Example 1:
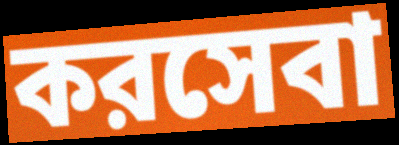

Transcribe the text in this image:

করসেবা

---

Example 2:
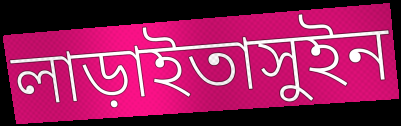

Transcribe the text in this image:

লাড়াইতাসুইন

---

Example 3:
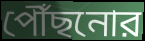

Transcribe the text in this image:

পৌঁছনোর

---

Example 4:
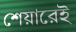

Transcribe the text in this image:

শেয়ারেই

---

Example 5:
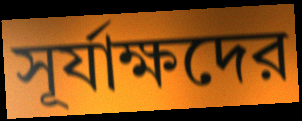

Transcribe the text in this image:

সূর্যাক্ষদের